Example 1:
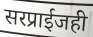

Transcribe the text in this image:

सरप्राईजही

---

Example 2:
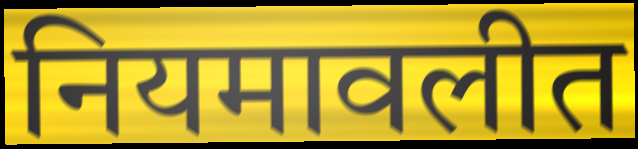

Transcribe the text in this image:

नियमावलीत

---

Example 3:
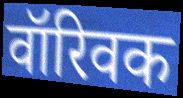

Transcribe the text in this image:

वॉरिवक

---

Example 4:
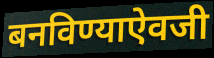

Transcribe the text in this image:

बनविण्याऐवजी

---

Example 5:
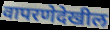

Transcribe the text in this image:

वापरणेदेखील